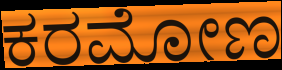
ಕರಮೋಣ